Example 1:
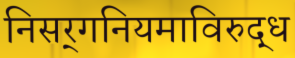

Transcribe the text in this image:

निसर्गनियमाविरुद्ध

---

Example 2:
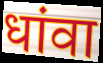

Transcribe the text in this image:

धांवा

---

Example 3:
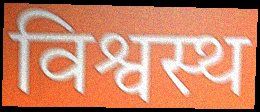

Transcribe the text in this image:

विश्वस्थ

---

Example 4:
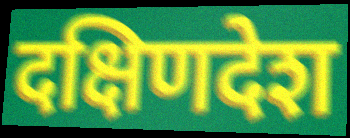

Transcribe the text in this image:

दक्षिणदेश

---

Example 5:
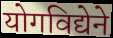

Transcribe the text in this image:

योगविद्येने